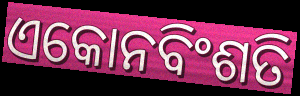
ଏକୋନବିଂଶତି